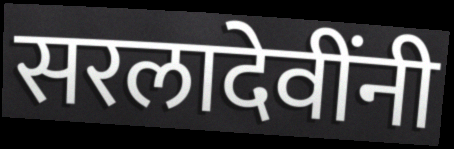
सरलादेवींनी